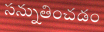
సన్నుతించడం